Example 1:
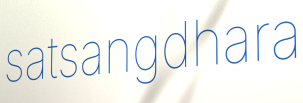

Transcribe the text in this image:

satsangdhara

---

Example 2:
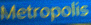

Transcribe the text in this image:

Metropolis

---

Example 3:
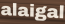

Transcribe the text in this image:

alaigal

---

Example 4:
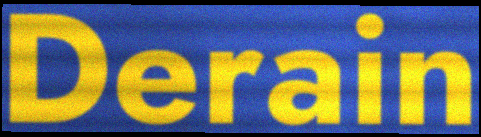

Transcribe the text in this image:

Derain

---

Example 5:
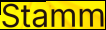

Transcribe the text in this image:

Stamm